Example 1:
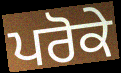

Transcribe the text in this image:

ਪਰੋਕੇ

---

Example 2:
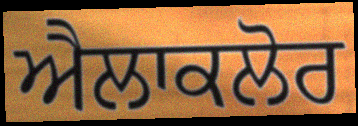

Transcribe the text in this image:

ਐਲਾਕਲੋਰ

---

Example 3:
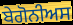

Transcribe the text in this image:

ਬੇਗੋਨੀਅਸ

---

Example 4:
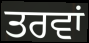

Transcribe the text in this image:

ਤਰਵਾਂ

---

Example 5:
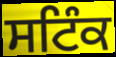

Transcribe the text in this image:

ਸਟਿੰਕ